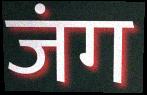
जंग